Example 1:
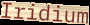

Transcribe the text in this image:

Iridium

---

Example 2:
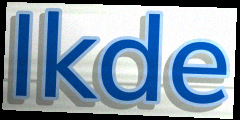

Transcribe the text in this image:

Ikde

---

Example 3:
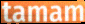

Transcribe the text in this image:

tamam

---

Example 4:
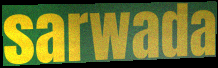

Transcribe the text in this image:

sarwada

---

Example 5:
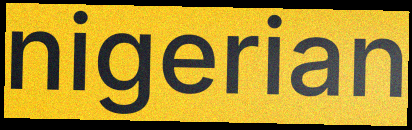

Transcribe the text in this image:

nigerian